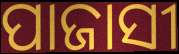
ପାଜାସୀ